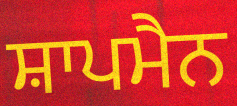
ਸ਼ਾਪਮੈਨ